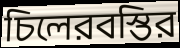
চিলেরবস্তির